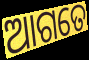
ଆଗତେ